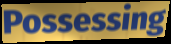
Possessing